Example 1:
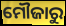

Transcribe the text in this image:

ମୌଜାରୁ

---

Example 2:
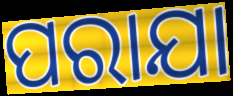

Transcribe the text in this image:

ପରାଯା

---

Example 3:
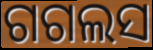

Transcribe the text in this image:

ଗଗଲସ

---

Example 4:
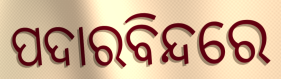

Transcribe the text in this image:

ପଦାରବିନ୍ଦରେ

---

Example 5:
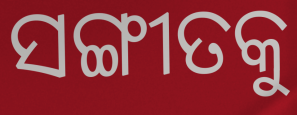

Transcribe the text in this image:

ସଙ୍ଗୀତକୁ